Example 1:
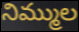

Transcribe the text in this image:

నిమ్ముల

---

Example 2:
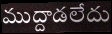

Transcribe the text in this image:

ముద్దాడలేదు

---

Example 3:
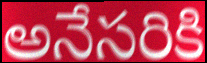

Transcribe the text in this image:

అనేసరికి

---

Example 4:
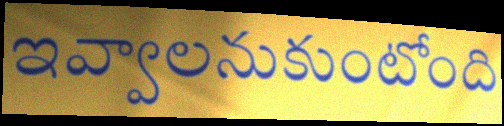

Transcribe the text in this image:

ఇవ్వాలనుకుంటోంది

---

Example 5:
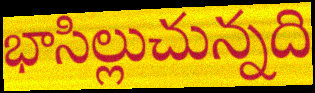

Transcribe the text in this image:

భాసిల్లుచున్నది